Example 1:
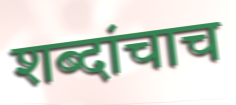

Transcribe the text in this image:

शब्दांचाच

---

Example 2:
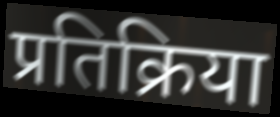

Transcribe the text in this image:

प्रतिक्रिया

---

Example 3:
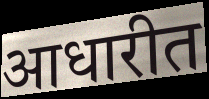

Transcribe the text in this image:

आधारीत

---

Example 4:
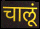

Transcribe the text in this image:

चालूं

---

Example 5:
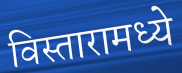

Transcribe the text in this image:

विस्तारामध्ये